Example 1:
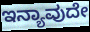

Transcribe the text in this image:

ಇನ್ಯಾವುದೇ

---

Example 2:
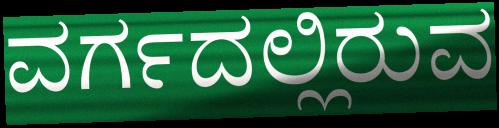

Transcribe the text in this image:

ವರ್ಗದಲ್ಲಿರುವ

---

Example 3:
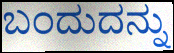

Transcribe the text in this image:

ಬಂದುದನ್ನು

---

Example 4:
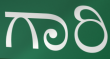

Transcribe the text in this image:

ಗಾರಿ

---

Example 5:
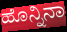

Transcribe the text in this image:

ಹೊನ್ನಿನಾ